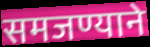
समजण्याने